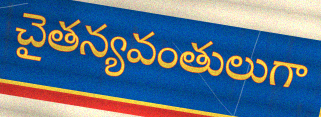
చైతన్యవంతులుగా